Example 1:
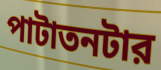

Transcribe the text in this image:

পাটাতনটার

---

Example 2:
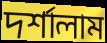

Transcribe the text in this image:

দর্শালাম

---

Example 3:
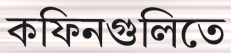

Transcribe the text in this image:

কফিনগুলিতে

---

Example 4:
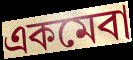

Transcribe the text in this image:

একমেবা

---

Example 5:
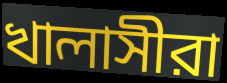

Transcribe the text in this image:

খালাসীরা